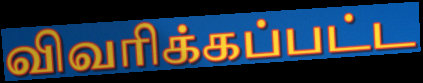
விவரிக்கப்பட்ட